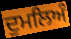
ਦੁਮਲਿਅੰ